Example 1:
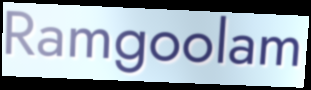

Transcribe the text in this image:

Ramgoolam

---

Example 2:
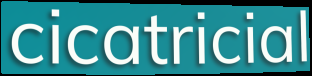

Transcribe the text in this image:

cicatricial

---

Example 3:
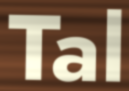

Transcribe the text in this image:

Tal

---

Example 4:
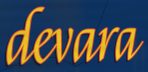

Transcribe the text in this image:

devara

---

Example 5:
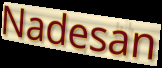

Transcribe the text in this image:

Nadesan